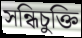
সন্ধিচুক্তি